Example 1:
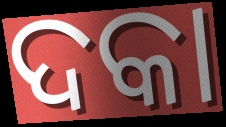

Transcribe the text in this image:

ଦକା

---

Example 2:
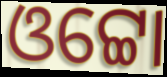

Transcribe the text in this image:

ଓଟ୍ଟୋ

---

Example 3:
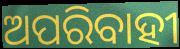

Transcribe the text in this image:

ଅପରିବାହୀ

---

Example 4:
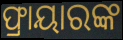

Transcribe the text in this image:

ଫ୍ରାୟାରଙ୍କ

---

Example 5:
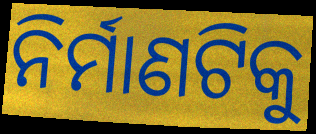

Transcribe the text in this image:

ନିର୍ମାଣଟିକୁ